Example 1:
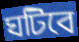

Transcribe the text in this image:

ঘটিবে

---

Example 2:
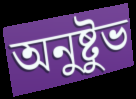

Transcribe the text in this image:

অনুষ্টুভ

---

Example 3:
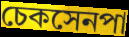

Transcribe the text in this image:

চেকসেনপা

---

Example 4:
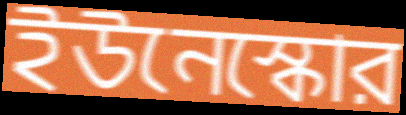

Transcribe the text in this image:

ইউনেস্কোর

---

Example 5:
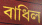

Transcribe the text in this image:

বাধিল